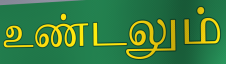
உண்டலும்